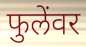
फुलेंवर